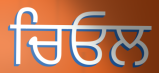
ਚਿਓਲ